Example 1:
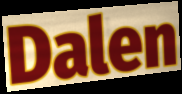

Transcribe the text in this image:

Dalen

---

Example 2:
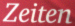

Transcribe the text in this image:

Zeiten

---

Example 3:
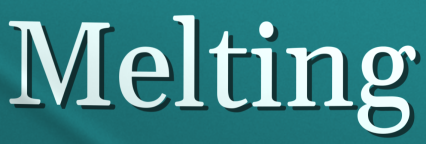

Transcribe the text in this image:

Melting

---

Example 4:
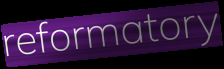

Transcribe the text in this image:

reformatory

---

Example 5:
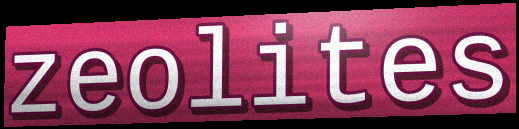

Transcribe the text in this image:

zeolites